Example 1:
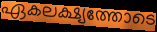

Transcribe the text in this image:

ഏകലക്ഷ്യത്തോടെ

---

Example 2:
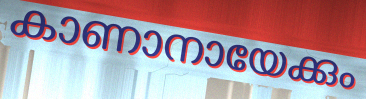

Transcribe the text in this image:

കാണാനായേക്കും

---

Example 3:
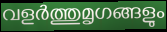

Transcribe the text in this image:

വളർത്തുമൃഗങ്ങളും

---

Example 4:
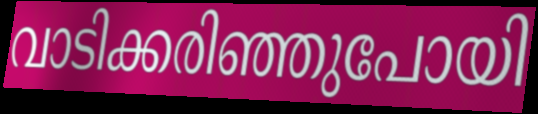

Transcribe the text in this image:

വാടിക്കരിഞ്ഞുപോയി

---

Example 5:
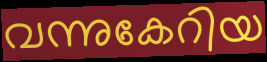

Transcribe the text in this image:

വന്നുകേറിയ